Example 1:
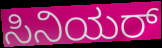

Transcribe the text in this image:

ಸಿನಿಯರ್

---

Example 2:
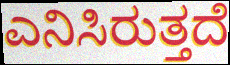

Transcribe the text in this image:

ಎನಿಸಿರುತ್ತದೆ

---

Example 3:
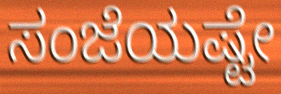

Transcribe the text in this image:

ಸಂಜೆಯಷ್ಟೇ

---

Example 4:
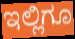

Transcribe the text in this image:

ಇಲ್ಲಿಗೂ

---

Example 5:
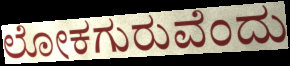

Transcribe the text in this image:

ಲೋಕಗುರುವೆಂದು